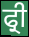
ਫ੍ਰੀ